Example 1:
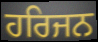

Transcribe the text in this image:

ਹਰਿਜਨ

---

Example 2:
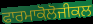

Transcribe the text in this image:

ਫਾਰਮਾਕੋਲੋਜੀਕਲ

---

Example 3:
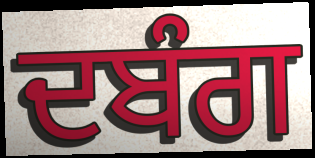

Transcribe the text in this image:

ਦਬੰਗ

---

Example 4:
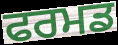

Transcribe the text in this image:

ਫਰਮਡ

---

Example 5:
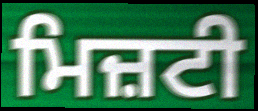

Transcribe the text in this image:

ਮਿਜ਼ਟੀ